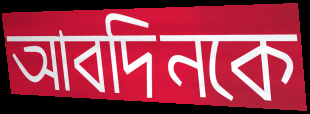
আবদিনকে